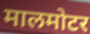
मालमोटर